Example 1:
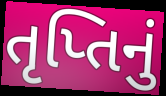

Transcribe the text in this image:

તૃપ્તિનું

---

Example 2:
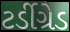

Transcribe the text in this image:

ટર્ડીગ્રેડ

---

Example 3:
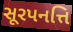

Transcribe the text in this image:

સૂરપનત્તિ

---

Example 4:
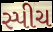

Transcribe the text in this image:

સ્પીચ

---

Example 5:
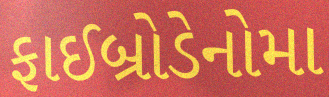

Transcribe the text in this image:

ફાઈબ્રોડેનોમા